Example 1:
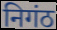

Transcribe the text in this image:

निगंठ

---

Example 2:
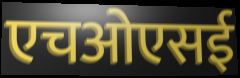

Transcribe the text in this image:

एचओएसई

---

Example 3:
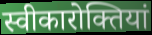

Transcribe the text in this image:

स्वीकारोक्तियां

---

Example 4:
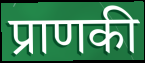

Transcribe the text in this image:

प्राणकी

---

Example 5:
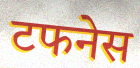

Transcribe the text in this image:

टफनेस